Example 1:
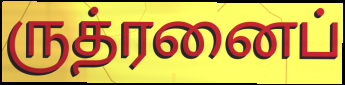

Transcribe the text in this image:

ருத்ரனைப்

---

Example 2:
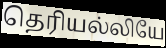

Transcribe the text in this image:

தெரியல்லியே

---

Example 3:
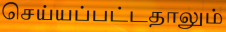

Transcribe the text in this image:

செய்யப்பட்டதாலும்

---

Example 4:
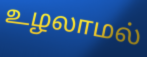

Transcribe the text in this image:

உழலாமல்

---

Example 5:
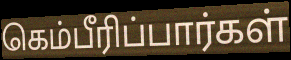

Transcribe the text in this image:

கெம்பீரிப்பார்கள்